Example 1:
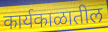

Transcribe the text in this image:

कार्यकाळातील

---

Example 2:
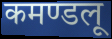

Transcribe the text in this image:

कमण्डलू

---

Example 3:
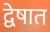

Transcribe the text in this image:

द्वेषात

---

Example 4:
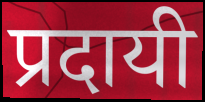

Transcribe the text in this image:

प्रदायी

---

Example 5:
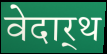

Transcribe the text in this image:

वेदार्थ